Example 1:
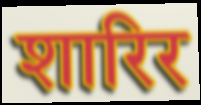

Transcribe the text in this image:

शारिर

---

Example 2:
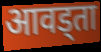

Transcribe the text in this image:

आवड्ता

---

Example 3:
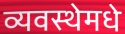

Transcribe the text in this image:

व्यवस्थेमधे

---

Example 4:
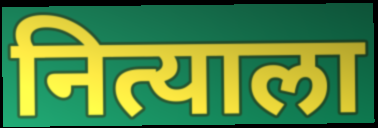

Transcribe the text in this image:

नित्याला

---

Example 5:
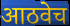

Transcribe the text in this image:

आठवेच